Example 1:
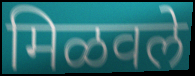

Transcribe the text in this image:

मिळवले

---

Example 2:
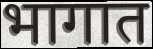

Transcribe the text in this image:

भागात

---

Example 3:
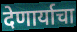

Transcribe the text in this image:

देणार्याचा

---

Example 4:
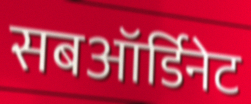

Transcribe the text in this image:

सबऑर्डिनेट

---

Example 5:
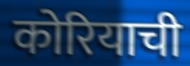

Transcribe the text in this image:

कोरियाची